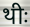
थीः